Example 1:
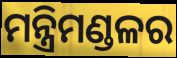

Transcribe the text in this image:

ମନ୍ତ୍ରିମଣ୍ଡଳର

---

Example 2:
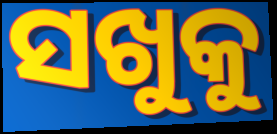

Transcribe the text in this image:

ସଖୁକୁ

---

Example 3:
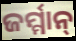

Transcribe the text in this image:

ଜର୍ମ୍ମାନ୍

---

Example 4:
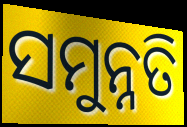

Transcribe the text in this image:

ସମୁନ୍ନତି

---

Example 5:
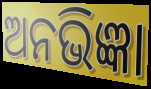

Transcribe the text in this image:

ଅନଭିଜ୍ଞା